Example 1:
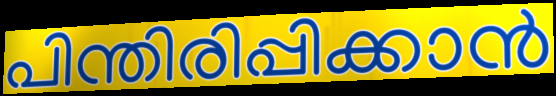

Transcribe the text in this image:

പിന്തിരിപ്പിക്കാൻ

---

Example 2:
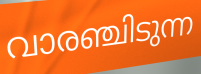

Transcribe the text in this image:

വാരഞ്ചിടുന്ന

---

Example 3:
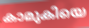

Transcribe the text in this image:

കാമുകിയെ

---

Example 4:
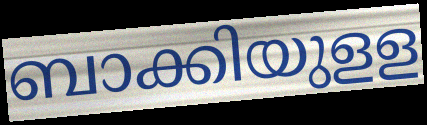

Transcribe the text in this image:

ബാക്കിയുളള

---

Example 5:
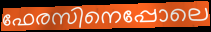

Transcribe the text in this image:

ഫേരസിനെപ്പോലെ